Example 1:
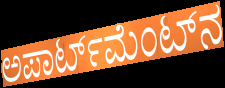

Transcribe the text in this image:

ಅಪಾರ್ಟ್‌ಮೆಂಟ್‌ನ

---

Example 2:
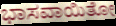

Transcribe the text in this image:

ಭಾಸವಾಯಿತೋ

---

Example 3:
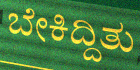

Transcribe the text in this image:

ಬೇಕಿದ್ದಿತು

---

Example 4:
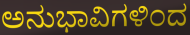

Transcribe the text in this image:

ಅನುಭಾವಿಗಳಿಂದ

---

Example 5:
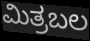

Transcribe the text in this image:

ಮಿತ್ರಬಲ